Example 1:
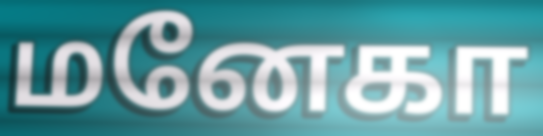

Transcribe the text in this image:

மனேகா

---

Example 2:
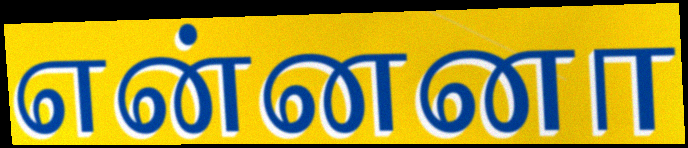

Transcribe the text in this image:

என்னனா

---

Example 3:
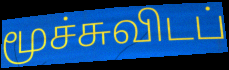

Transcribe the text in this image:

மூச்சுவிடப்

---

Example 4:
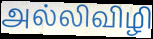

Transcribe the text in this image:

அல்லிவிழி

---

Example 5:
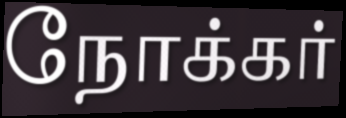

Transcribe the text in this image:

நோக்கர்